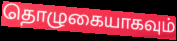
தொழுகையாகவும்